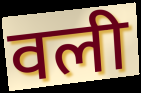
वली